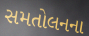
સમતોલનના